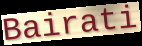
Bairati